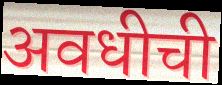
अवधीची